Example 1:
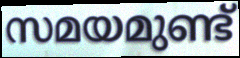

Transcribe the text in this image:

സമയമുണ്ട്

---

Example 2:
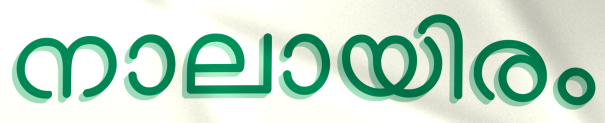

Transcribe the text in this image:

നാലായിരം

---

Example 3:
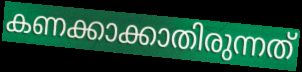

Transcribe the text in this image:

കണക്കാക്കാതിരുന്നത്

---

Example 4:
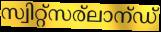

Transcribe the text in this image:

സ്വിറ്റ്സര്ലാന്ഡ്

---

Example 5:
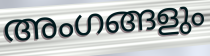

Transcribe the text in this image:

അംഗങ്ങളും